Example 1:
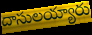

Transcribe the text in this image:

దాసులయ్యారు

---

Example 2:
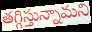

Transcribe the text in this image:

తగ్గిస్తున్నామని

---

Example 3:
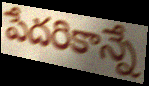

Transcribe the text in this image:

పేదరికాన్నే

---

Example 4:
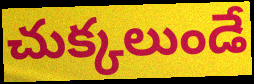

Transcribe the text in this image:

చుక్కలుండే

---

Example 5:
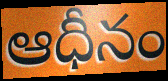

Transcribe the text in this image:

ఆధీనం